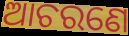
ଆଚରଣେ